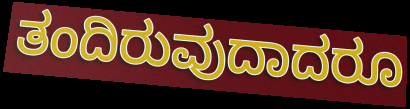
ತಂದಿರುವುದಾದರೂ